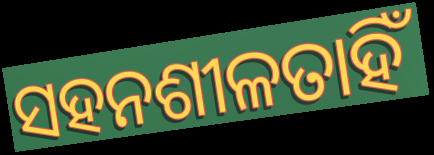
ସହନଶୀଳତାହିଁ